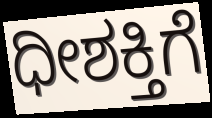
ಧೀಶಕ್ತಿಗೆ